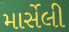
માર્સેલી